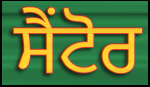
ਸੈਂਟੋਰ